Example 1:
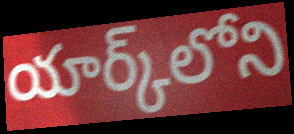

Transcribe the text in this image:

యార్క్‌లోని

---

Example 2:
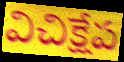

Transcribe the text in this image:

విచిక్షేప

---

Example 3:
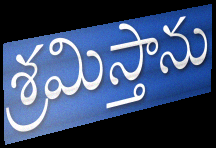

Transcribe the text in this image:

శ్రమిస్తాను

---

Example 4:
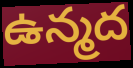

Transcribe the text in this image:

ఉన్మద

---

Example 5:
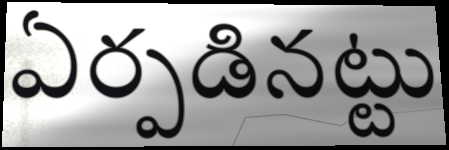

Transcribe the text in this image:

ఏర్పడినట్టు